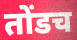
तोंडच